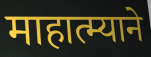
माहात्म्याने